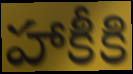
హాకీకి